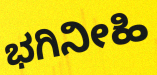
ಭಗಿನೀಹಿ